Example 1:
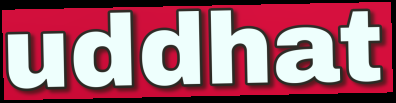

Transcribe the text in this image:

uddhat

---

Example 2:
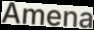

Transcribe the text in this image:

Amena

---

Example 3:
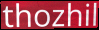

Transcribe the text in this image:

thozhil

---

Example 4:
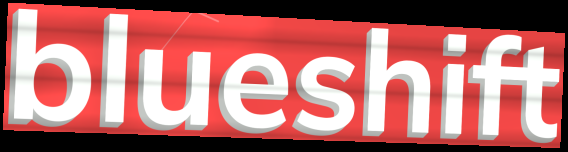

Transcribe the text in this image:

blueshift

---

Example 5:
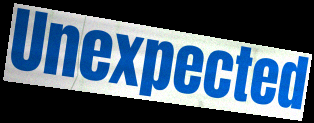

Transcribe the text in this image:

Unexpected